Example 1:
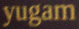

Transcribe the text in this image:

yugam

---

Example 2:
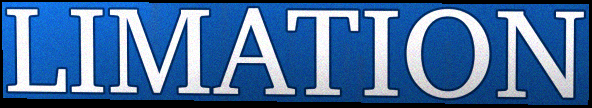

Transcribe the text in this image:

LIMATION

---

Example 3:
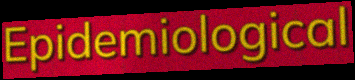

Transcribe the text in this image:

Epidemiological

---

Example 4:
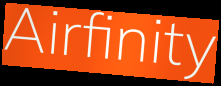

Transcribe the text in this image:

Airfinity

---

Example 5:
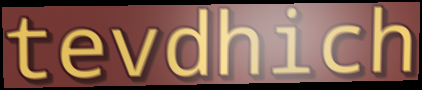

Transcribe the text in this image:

tevdhich